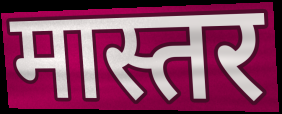
मास्तर